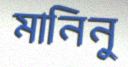
মানিনু